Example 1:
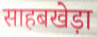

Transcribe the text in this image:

साहबखेड़ा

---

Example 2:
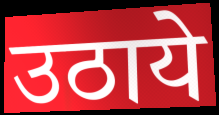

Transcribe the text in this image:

उठाये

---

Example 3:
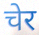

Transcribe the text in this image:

चेर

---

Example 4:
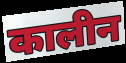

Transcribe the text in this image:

कालीन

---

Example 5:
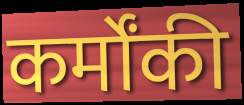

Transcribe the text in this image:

कर्मोंकी